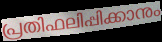
പ്രതിഫലിപ്പിക്കാനും